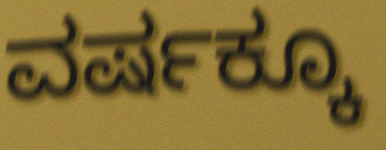
ವರ್ಷಕ್ಕೂ